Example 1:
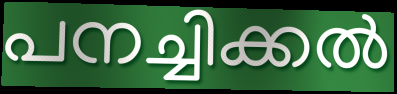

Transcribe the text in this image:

പനച്ചിക്കൽ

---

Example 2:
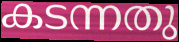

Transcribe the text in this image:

കടന്നതു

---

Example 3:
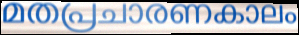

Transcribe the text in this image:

മതപ്രചാരണകാലം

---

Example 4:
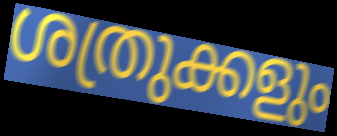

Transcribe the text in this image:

ശത്രുക്കളും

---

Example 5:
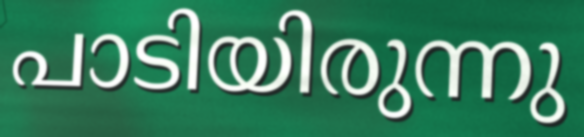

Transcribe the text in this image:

പാടിയിരുന്നു